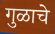
गुळाचे